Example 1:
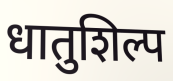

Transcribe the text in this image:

धातुशिल्प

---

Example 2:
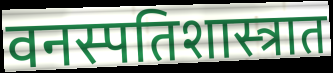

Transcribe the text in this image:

वनस्पतिशास्त्रात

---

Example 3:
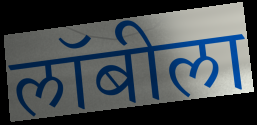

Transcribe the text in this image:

लॉबीला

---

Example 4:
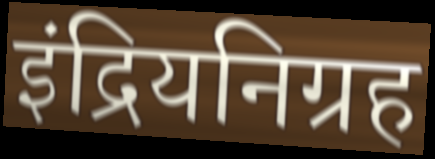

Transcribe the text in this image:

इंद्रियनिग्रह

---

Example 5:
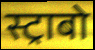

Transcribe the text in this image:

स्ट्राबो